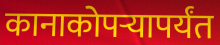
कानाकोपऱ्यापर्यंत